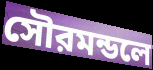
সৌরমন্ডলে